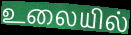
உலையில்